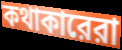
কথাকারেরা